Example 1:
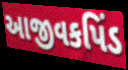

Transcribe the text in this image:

આજીવકપિંડ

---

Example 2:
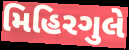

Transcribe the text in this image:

મિહિરગુલે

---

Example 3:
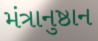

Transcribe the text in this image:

મંત્રાનુષ્ઠાન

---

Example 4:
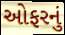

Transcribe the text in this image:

ઓફરનું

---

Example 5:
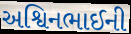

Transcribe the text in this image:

અશ્વિનભાઈની